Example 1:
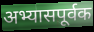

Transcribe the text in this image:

अभ्यासपूर्वक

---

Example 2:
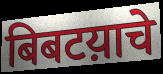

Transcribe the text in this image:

बिबटय़ाचे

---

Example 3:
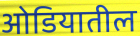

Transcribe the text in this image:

ओडियातील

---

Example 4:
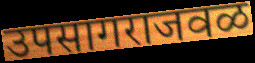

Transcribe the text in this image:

उपसागराजवळ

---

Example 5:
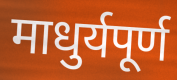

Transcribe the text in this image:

माधुर्यपूर्ण